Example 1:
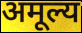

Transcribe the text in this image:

अमूल्य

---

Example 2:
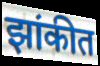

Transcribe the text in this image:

झांकीत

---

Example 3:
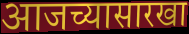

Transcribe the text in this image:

आजच्यासारखा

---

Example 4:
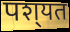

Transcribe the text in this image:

पश्यत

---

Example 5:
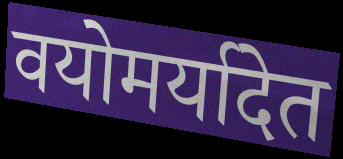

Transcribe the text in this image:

वयोमर्यादेत